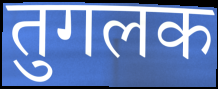
तुगलक